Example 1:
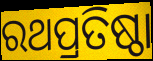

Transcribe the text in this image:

ରଥପ୍ରତିଷ୍ଠା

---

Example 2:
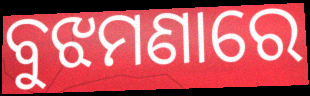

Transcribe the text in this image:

ବୁଝମଣାରେ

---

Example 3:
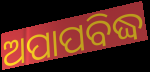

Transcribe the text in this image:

ଅପାପବିଦ୍ଧ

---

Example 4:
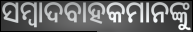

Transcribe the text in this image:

ସମ୍ବାଦବାହକମାନଙ୍କୁ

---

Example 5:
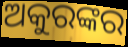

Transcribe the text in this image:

ଅକୁରଙ୍କର